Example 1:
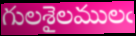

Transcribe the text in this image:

గులశైలములఁ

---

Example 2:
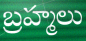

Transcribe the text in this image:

బ్రహ్మలు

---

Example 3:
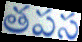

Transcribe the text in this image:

తపస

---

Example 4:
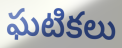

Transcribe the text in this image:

ఘటికలు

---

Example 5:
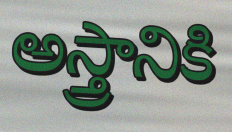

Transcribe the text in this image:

అస్త్రానికి